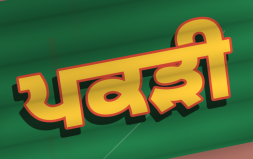
ਪਕੜੀ